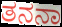
ತನನಾ